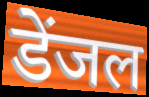
डेंजल